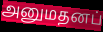
அனுமதனப்